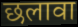
छलावा